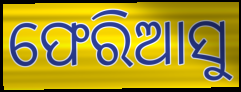
ଫେରିଆସୁ